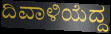
ದಿವಾಳಿಯೆದ್ದ